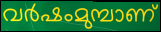
വർഷംമുമ്പാണ്